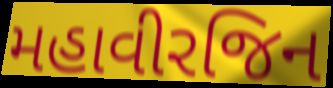
મહાવીરજિન